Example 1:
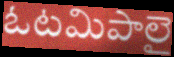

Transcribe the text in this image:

ఓటమిపాలై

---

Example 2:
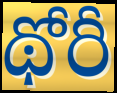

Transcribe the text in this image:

థోరీ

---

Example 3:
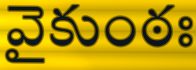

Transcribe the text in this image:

వైకుంఠః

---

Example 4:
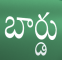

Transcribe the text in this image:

బార్డు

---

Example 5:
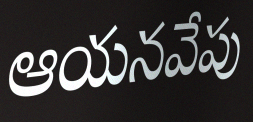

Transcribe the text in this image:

ఆయనవేపు